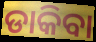
ଡାକିବା